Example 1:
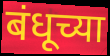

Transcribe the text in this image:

बंधूच्या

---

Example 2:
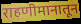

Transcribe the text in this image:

राहणीमानातून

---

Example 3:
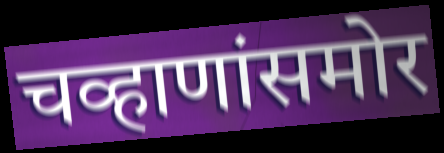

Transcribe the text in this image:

चव्हाणांसमोर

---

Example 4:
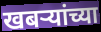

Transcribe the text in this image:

खबऱ्यांच्या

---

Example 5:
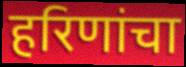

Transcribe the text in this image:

हरिणांचा